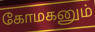
கோமகனும்